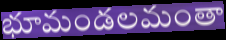
భూమండలమంతా